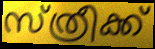
സ്‌ത്രീക്ക്